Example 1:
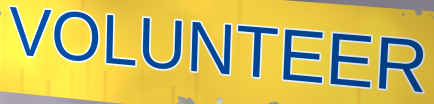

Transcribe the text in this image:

VOLUNTEER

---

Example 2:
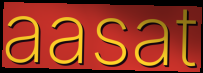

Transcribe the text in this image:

aasat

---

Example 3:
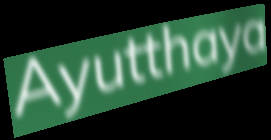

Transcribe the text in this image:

Ayutthaya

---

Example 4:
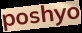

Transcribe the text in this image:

poshyo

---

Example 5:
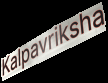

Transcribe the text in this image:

Kalpavriksha